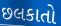
છલકાતો